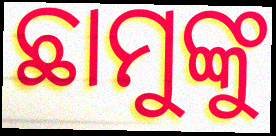
ଛାମୁଙ୍କୁ